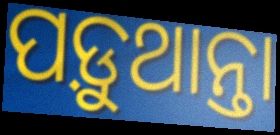
ପଡ଼ୁଥାନ୍ତା